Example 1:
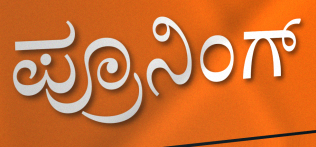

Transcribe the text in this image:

ಪ್ರೂನಿಂಗ್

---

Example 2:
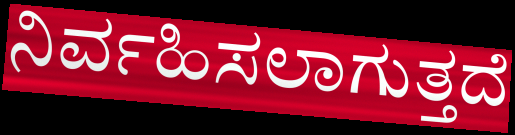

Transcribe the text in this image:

ನಿರ್ವಹಿಸಲಾಗುತ್ತದೆ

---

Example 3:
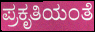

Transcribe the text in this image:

ಪ್ರಕೃತಿಯಂತೆ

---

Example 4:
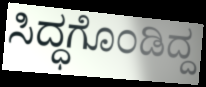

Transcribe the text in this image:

ಸಿದ್ಧಗೊಂಡಿದ್ದ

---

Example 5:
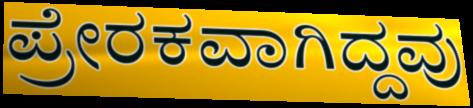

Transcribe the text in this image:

ಪ್ರೇರಕವಾಗಿದ್ದವು